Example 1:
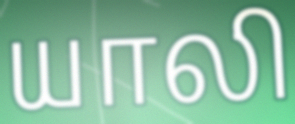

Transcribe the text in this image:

யாலி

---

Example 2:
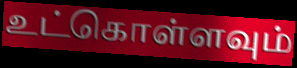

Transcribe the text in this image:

உட்கொள்ளவும்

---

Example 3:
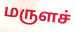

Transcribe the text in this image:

மருளச்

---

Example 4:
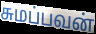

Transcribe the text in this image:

சுமப்பவன்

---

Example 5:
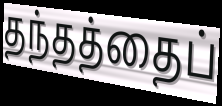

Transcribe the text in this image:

தந்தத்தைப்